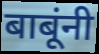
बाबूंनी